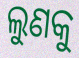
ଲୁଣକୁ